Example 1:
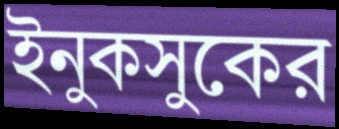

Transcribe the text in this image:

ইনুকসুকের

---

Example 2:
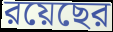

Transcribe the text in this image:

রয়েছের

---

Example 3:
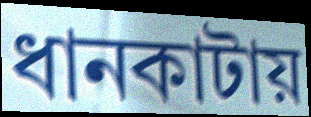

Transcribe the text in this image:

ধানকাটায়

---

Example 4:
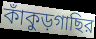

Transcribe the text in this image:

কাঁকুড়গাছির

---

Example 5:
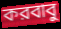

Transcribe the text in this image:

করবাবু